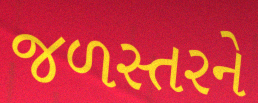
જળસ્તરને